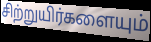
சிற்றுயிர்களையும்